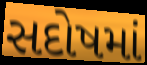
સદોષમાં